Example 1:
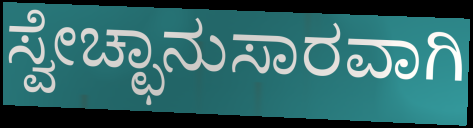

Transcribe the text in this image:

ಸ್ವೇಚ್ಛಾನುಸಾರವಾಗಿ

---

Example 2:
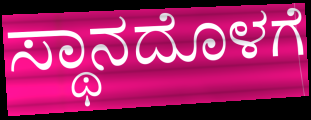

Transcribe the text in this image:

ಸ್ಥಾನದೊಳಗೆ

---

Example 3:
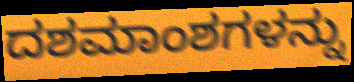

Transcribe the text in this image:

ದಶಮಾಂಶಗಳನ್ನು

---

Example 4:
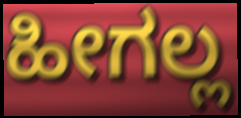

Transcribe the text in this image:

ಹೀಗಲ್ಲ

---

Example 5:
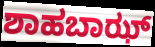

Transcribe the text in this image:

ಶಾಹಬಾಝ್